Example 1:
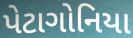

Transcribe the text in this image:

પેટાગોનિયા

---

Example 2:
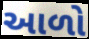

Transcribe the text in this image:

આળો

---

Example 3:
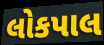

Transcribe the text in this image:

લોકપાલ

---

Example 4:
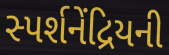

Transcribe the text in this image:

સ્પર્શનેંદ્રિયની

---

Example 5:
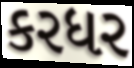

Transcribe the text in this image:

કરધર